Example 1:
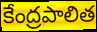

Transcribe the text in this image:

కేంద్రపాలిత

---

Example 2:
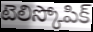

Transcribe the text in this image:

టెలిస్కోపిక్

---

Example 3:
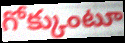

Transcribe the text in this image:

గోక్కుంటూ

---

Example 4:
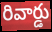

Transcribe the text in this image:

రివార్డు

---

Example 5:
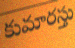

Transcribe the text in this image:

కుమారస్తు